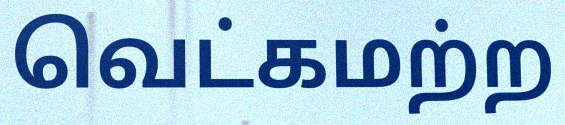
வெட்கமற்ற